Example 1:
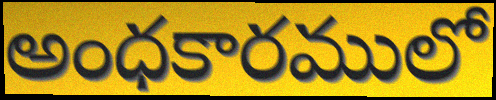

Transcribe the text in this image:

అంధకారములో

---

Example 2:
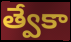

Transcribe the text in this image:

త్వేకా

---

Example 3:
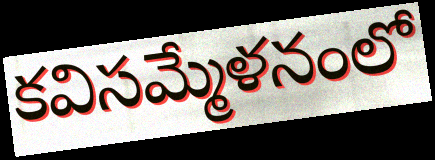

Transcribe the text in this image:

కవిసమ్మేళనంలో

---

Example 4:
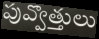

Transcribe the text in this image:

పువ్వొత్తులు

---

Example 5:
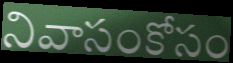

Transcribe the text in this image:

నివాసంకోసం